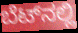
ಬೆಟ್‌ನಲ್ಲಿ